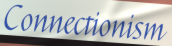
Connectionism